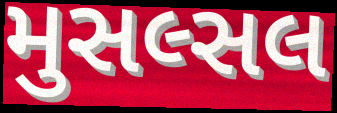
મુસલ્સલ